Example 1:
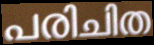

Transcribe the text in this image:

പരിചിത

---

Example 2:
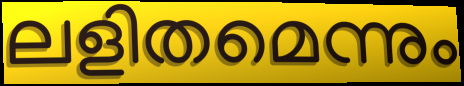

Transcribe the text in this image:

ലളിതമെന്നും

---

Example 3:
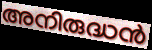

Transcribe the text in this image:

അനിരുദ്ധൻ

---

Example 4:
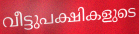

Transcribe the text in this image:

വീട്ടുപക്ഷികളുടെ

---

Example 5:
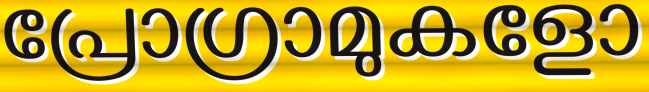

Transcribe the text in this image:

പ്രോഗ്രാമുകളോ